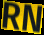
RN